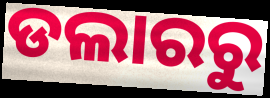
ଡଲାରରୁ